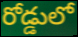
రోడ్డులో